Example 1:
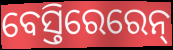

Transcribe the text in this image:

ବେସ୍ତିରେରେନ୍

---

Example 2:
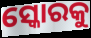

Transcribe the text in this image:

ସ୍କୋରକୁ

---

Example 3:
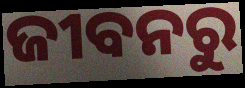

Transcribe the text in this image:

ଜୀବନରୁ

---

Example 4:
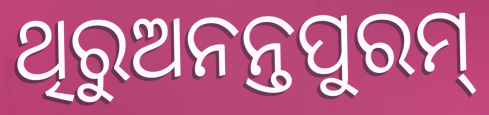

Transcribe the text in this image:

ଥିରୁଅନନ୍ତପୁରମ୍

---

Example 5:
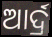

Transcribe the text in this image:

ଆର୍ଦ୍ର